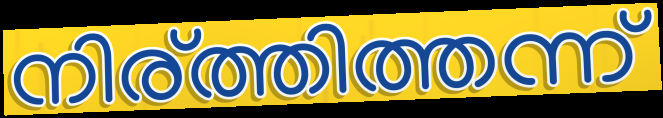
നിര്ത്തിത്തന്ന്